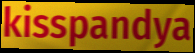
kisspandya